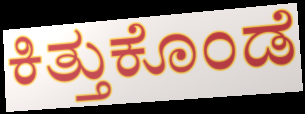
ಕಿತ್ತುಕೊಂಡೆ